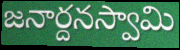
జనార్దనస్వామి